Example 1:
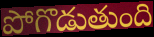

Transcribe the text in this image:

పోగొడుతుంది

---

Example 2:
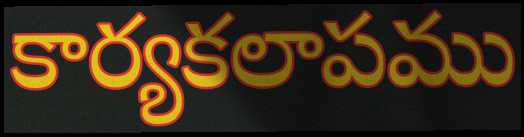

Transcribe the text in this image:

కార్యకలాపము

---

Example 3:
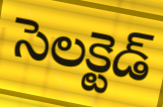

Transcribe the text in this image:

సెలక్టెడ్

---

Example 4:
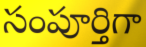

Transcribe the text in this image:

సంపూర్తిగా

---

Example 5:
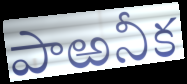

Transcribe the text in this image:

పాఱనీక